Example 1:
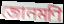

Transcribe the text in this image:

জোনমণি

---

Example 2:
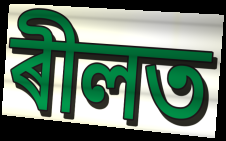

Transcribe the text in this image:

ৰীলত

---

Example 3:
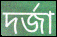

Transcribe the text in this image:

দৰ্জা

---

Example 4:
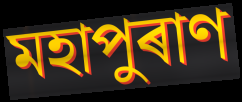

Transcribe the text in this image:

মহাপুৰাণ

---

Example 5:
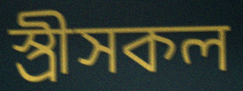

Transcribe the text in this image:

স্ত্ৰীসকল